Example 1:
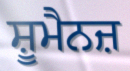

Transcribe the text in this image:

ਸ਼ੂਮੈਨਜ਼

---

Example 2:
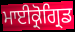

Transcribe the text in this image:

ਮਾਈਕ੍ਰੋਗ੍ਰਿਡ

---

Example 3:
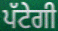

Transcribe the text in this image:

ਪੱਟੇਗੀ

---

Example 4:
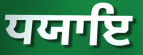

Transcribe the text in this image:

ਧਯਾਇ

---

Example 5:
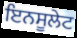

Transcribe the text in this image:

ਇਨਸੂਲੇਟ